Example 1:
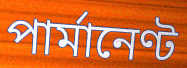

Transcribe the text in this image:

পাৰ্মানেণ্ট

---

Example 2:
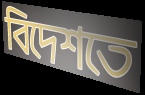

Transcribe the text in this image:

বিদেশতে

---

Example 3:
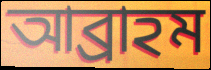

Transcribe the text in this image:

আব্ৰাহম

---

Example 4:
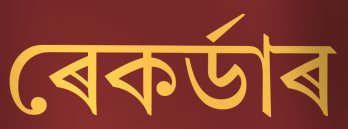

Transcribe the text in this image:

ৰেকৰ্ডাৰ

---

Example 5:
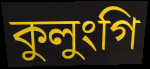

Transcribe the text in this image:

কুলুংগি